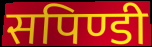
सपिण्डी